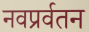
नवप्रर्वतन